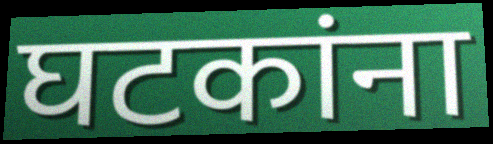
घटकांना